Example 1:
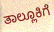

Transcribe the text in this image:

ತಾಲ್ಲೂಕಿಗೆ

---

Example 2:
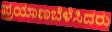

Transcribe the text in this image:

ಪ್ರಯಾಣಬೆಳೆಸಿದರು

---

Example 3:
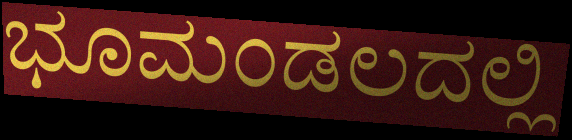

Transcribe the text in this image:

ಭೂಮಂಡಲದಲ್ಲಿ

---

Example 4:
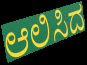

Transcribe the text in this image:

ಆಲಿಸಿದ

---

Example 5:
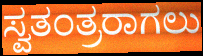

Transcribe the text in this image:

ಸ್ವತಂತ್ರರಾಗಲು